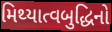
મિથ્યાત્વબુદ્ધિનો